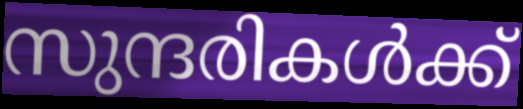
സുന്ദരികൾക്ക്